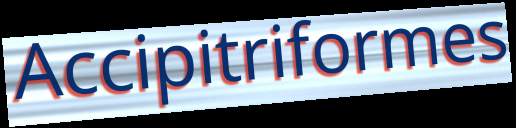
Accipitriformes